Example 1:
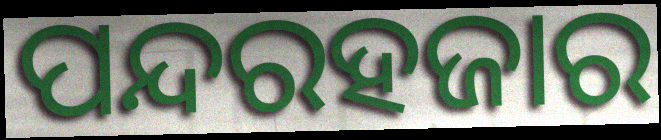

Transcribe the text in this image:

ପନ୍ଦରହଜାର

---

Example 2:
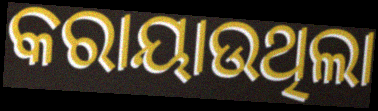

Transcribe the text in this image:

କରାୟାଉଥିଲା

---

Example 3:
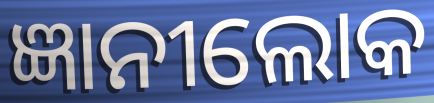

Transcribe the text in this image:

ଜ୍ଞାନୀଲୋକ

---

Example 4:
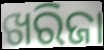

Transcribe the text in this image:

ଖରିଜା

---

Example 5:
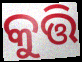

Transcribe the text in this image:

କୁତ୍ତି